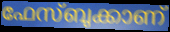
ഫേസ്ബുക്കാണ്